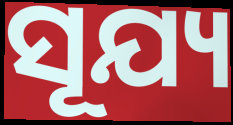
ସୂଯ୍ୟ